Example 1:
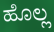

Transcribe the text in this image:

ಹೊಲ್ಲ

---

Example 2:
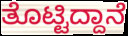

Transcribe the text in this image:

ತೊಟ್ಟಿದ್ದಾನೆ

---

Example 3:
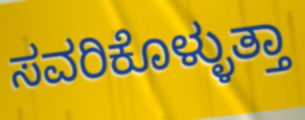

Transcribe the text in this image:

ಸವರಿಕೊಳ್ಳುತ್ತಾ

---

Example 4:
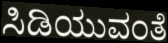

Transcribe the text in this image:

ಸಿಡಿಯುವಂತೆ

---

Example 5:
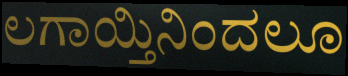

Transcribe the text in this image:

ಲಗಾಯ್ತಿನಿಂದಲೂ